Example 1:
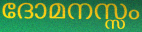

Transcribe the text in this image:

ദോമനസ്സം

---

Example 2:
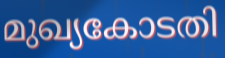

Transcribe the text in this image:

മുഖ്യകോടതി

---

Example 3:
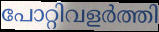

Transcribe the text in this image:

പോറ്റിവളർത്തി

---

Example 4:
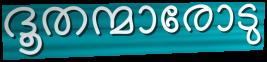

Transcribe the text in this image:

ദൂതന്മാരോടു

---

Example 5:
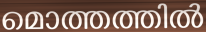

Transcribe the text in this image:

മൊത്തത്തിൽ